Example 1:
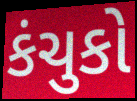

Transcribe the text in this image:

કંચુકો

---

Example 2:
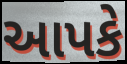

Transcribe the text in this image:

આપકે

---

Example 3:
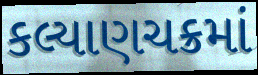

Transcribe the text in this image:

કલ્યાણચક્રમાં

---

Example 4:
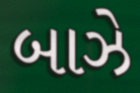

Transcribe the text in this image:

બાઝે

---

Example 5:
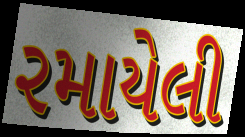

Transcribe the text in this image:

રમાયેલી